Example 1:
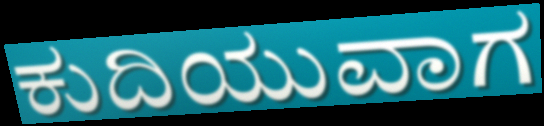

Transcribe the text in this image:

ಕುದಿಯುವಾಗ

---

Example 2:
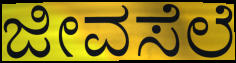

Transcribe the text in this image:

ಜೀವಸೆಲೆ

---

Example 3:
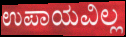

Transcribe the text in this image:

ಉಪಾಯವಿಲ್ಲ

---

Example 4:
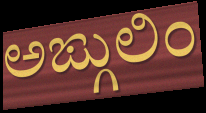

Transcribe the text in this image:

ಅಙ್ಗುಲಿಂ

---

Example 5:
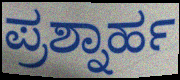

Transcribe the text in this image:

ಪ್ರಶ್ನಾರ್ಹ